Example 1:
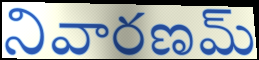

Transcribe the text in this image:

నివారణమ్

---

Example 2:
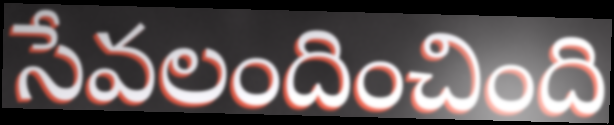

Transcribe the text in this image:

సేవలందించింది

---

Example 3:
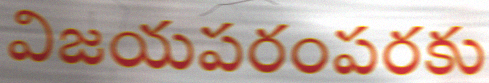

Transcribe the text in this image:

విజయపరంపరకు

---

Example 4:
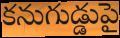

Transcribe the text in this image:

కనుగుడ్డుపై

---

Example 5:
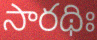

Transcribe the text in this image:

సారథిః